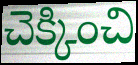
చెక్కించి